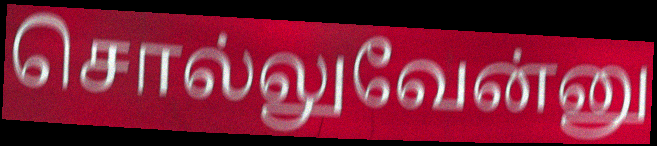
சொல்லுவேன்னு